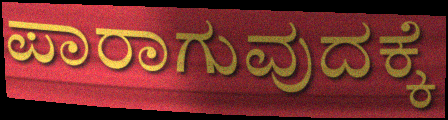
ಪಾರಾಗುವುದಕ್ಕೆ